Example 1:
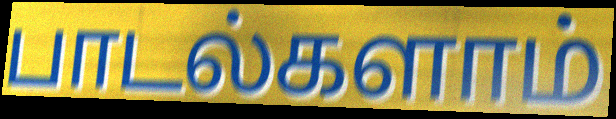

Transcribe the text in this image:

பாடல்களாம்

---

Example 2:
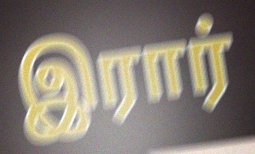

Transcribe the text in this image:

இரார்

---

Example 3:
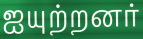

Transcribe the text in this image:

ஐயுற்றனர்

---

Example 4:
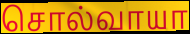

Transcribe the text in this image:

சொல்வாயா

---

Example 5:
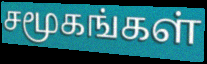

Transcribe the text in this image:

சமூகங்கள்